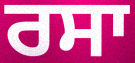
ਰਸਾ